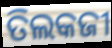
ତିଲକଜୀ